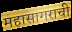
महासागराची